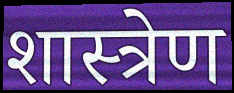
शास्त्रेण